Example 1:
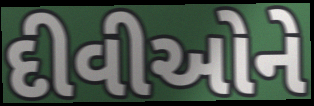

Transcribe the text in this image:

દીવીઓને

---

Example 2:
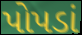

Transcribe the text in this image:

પોપડાં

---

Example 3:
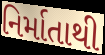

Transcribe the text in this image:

નિર્માતાથી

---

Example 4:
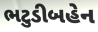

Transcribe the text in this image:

ભટુડીબહેન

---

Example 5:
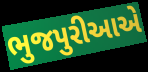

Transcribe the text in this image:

ભુજપુરીઆએ